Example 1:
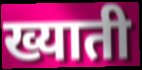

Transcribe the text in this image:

ख्याती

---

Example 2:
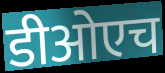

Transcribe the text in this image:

डीओएच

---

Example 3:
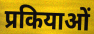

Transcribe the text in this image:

प्रकियाओं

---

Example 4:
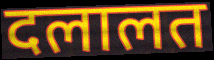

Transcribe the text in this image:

दलालत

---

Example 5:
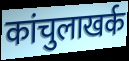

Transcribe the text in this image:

कांचुलाखर्क